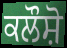
ਕਲੌਸ਼ੋ